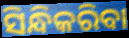
ସିନ୍ଧିକରିବା